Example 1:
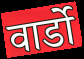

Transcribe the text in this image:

वार्डो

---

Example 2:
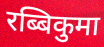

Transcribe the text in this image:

रब्बिकुमा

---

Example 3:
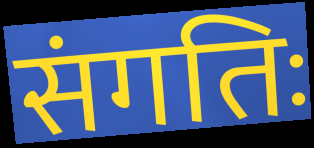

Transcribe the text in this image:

संगतिः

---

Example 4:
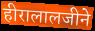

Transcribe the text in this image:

हीरालालजीने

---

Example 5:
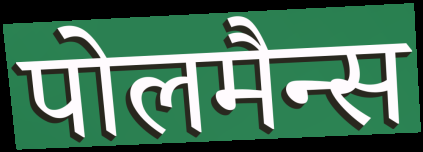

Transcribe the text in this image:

पोलमैन्स